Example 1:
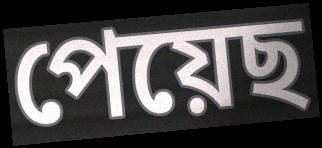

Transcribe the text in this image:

পেয়েছ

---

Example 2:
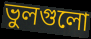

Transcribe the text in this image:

ভুলগুলো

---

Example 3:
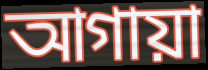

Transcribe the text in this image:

আগায়া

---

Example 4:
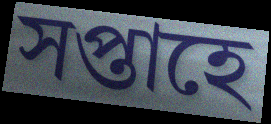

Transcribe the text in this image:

সপ্তাহে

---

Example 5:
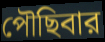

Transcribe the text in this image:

পৌছিবার